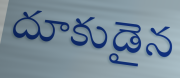
దూకుడైన